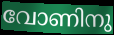
വോണിനു